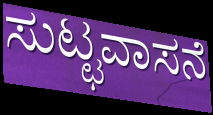
ಸುಟ್ಟವಾಸನೆ